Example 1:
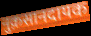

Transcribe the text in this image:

नुक़सानदायक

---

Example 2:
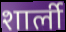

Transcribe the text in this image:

शार्ली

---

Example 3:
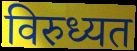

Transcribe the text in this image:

विरुध्यत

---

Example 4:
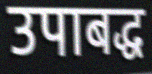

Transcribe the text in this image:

उपाबद्ध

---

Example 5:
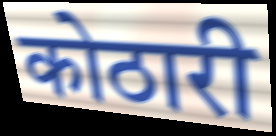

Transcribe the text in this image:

कोठारी